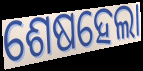
ଶେଷହେଲା